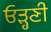
ਓੜ੍ਹਣੀ